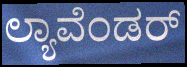
ಲ್ಯಾವೆಂಡರ್